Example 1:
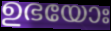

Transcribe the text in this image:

ഉഭയോഃ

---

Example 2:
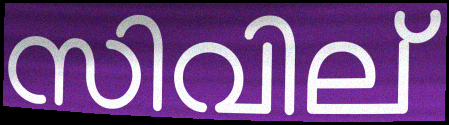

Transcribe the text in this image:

സിവില്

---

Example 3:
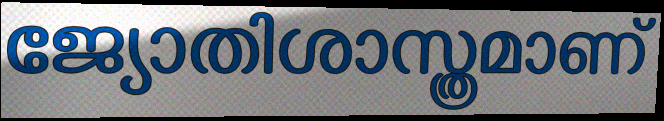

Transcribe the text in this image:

ജ്യോതിശാസ്ത്രമാണ്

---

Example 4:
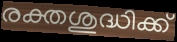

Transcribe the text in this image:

രക്തശുദ്ധിക്ക്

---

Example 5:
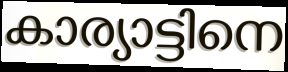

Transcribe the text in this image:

കാര്യാട്ടിനെ